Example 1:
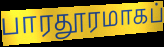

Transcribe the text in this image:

பாரதூரமாகப்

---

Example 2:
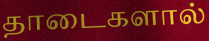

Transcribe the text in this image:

தாடைகளால்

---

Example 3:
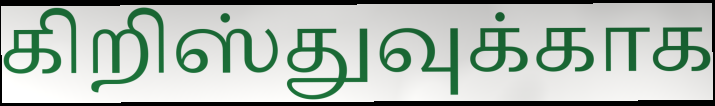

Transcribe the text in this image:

கிறிஸ்துவுக்காக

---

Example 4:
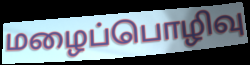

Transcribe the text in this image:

மழைப்பொழிவு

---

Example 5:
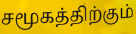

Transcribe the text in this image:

சமூகத்திற்கும்